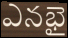
ఎనభై